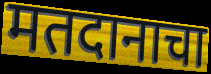
मतदानाचा